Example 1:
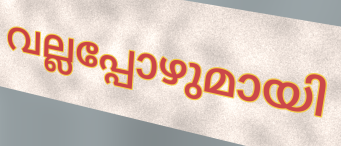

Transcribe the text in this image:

വല്ലപ്പോഴുമായി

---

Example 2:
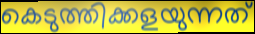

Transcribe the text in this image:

കെടുത്തിക്കളയുന്നത്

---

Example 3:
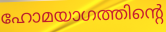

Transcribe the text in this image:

ഹോമയാഗത്തിന്റെ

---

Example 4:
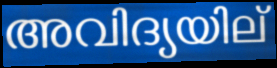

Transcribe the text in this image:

അവിദ്യയില്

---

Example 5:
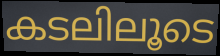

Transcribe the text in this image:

കടലിലൂടെ